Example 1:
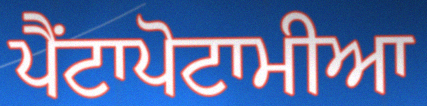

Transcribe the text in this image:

ਪੈਂਟਾਪੋਟਾਮੀਆ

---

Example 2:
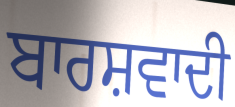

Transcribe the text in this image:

ਬਾਰਸ਼ਵਾਦੀ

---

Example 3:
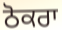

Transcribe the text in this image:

ਠੋਕਰਾ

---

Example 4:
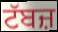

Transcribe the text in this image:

ਟੱਬਜ਼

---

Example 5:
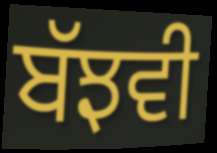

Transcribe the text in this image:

ਬੱਝਵੀ